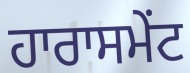
ਹਾਰਾਸਮੇਂਟ